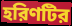
হরিণটির